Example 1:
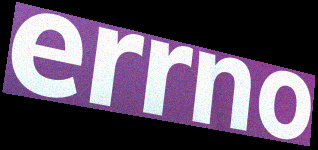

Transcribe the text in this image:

errno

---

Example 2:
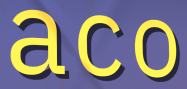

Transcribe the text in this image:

aco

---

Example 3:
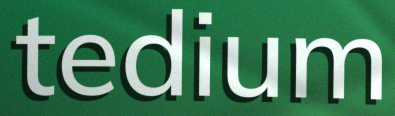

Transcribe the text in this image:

tedium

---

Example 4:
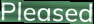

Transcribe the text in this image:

Pleased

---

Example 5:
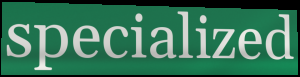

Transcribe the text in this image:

specialized